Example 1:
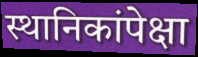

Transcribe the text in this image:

स्थानिकांपेक्षा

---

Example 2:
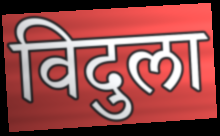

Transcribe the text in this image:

विदुला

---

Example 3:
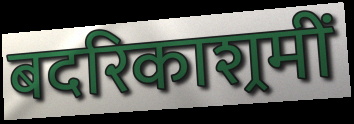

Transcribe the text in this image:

बदरिकाश्रमीं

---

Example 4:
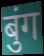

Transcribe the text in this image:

बुंग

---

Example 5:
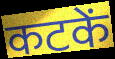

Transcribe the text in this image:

कटकें